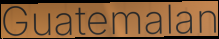
Guatemalan